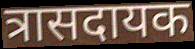
त्रासदायक